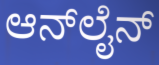
ಆನ್‌ಲೈನ್